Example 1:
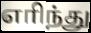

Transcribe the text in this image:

எரிந்து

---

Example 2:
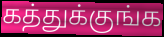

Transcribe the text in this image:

கத்துக்குங்க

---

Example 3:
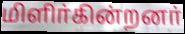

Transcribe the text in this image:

மிளிர்கின்றனர்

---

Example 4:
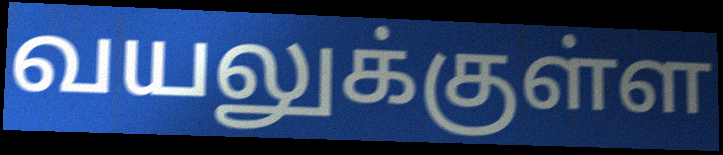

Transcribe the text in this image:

வயலுக்குள்ள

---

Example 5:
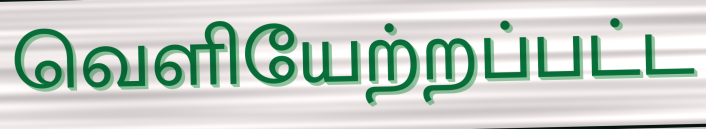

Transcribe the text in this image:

வெளியேற்றப்பட்ட